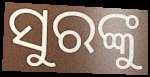
ସୁରଙ୍କୁ